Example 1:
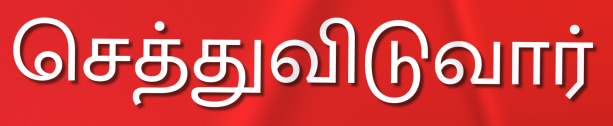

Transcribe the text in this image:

செத்துவிடுவார்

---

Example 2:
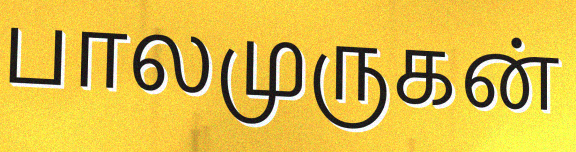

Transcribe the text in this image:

பாலமுருகன்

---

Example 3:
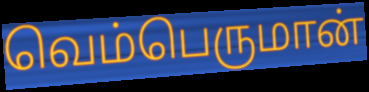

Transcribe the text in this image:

வெம்பெருமான்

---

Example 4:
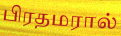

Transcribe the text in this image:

பிரதமரால்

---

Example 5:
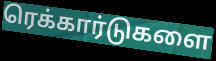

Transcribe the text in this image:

ரெக்கார்டுகளை